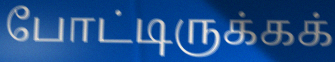
போட்டிருக்கக்